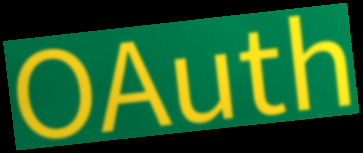
OAuth